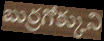
బుర్రగోక్కుని